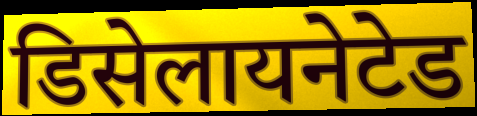
डिसेलायनेटेड